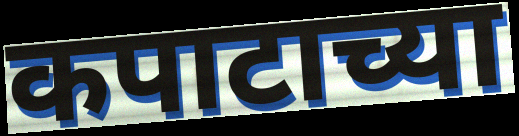
कपाटाच्या